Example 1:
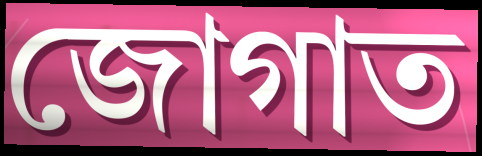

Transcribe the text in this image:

জোগাত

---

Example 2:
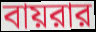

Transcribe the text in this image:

বায়রার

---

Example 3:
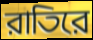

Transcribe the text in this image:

রাতিরে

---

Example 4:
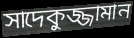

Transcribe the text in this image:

সাদেকুজ্জামান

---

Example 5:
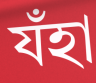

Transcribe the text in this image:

যঁহা